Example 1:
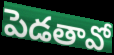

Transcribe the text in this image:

పెడతావో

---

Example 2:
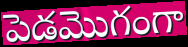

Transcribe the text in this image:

పెడమొగంగా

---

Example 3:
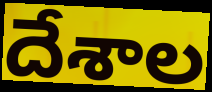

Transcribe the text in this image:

దేశాల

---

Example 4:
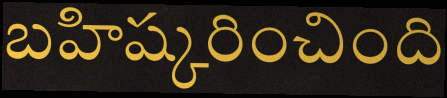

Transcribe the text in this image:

బహిష్కరించింది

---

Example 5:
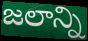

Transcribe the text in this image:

జలాన్ని